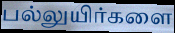
பல்லுயிர்களை